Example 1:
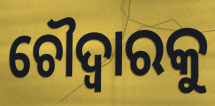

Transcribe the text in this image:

ଚୌଦ୍ୱାରକୁ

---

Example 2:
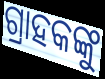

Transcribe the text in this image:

ଗ୍ରାହକଙ୍କୁ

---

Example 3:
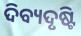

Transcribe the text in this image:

ଦିବ୍ୟଦୃଷ୍ଟି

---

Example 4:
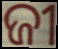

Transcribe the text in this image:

ଜୀ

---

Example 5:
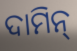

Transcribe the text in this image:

ଦାମିନ୍